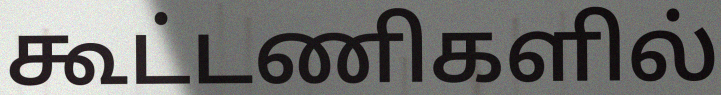
கூட்டணிகளில்